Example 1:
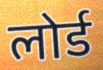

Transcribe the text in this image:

लोर्ड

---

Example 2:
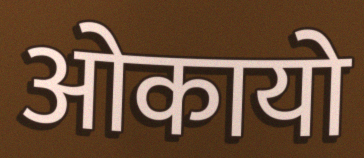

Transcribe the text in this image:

ओकायो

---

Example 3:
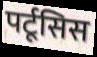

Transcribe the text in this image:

पर्टूसिस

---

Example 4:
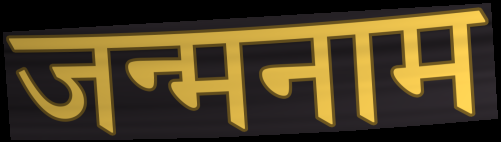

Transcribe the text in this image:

जन्मनाम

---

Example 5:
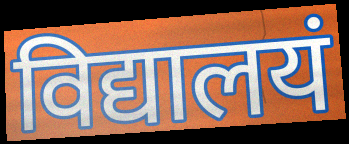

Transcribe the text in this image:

विद्यालयं